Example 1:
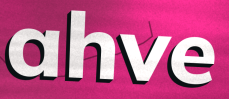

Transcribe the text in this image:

ahve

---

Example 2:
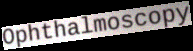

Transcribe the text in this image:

Ophthalmoscopy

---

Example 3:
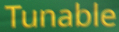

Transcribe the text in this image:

Tunable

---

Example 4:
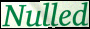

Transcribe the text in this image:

Nulled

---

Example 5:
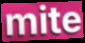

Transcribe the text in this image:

mite